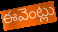
ఈవెంట్లు